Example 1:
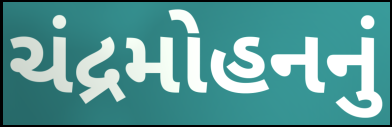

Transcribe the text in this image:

ચંદ્રમોહનનું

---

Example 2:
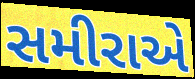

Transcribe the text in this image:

સમીરાએ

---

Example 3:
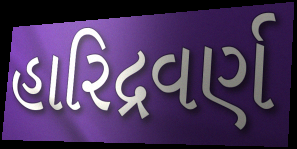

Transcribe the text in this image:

હારિદ્રવર્ણ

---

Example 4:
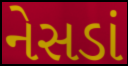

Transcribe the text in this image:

નેસડાં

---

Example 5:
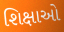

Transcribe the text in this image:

શિક્ષાઓ